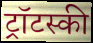
ट्रॉटस्की